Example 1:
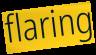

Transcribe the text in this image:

flaring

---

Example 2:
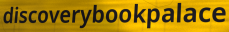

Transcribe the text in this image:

discoverybookpalace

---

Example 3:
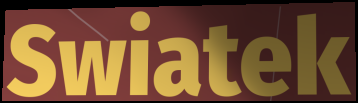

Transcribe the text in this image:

Swiatek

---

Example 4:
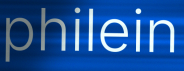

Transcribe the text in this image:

philein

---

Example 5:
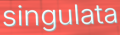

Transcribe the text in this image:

singulata